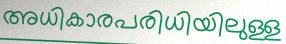
അധികാരപരിധിയിലുള്ള